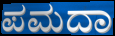
ಪಮದಾ